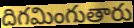
దిగమింగుతారు